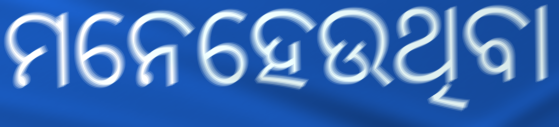
ମନେହେଉଥିବା